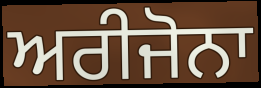
ਅਰੀਜੋਨਾ